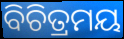
ବିଚିତ୍ରମୟ